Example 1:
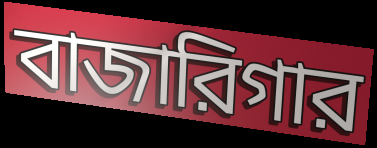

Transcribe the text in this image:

বাজারিগার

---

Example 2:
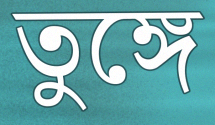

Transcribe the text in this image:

তুঙ্গে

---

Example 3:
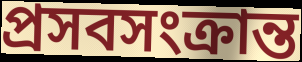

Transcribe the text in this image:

প্রসবসংক্রান্ত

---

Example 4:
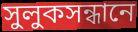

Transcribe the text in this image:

সুলুকসন্ধানে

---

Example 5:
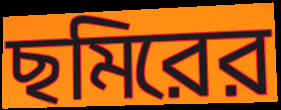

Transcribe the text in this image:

ছমিরের